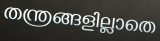
തന്ത്രങ്ങളില്ലാതെ